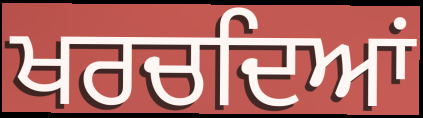
ਖਰਚਦਿਆਂ